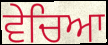
ਵੇਚਿਆ